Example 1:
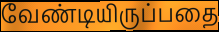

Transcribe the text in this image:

வேண்டியிருப்பதை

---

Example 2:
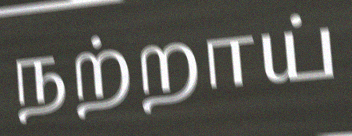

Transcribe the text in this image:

நற்றாய்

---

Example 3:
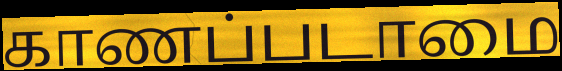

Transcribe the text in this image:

காணப்படாமை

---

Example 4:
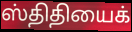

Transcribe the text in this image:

ஸ்திதியைக்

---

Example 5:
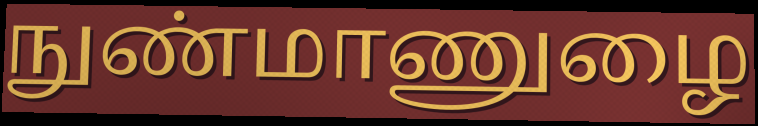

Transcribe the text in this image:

நுண்மாணுழை